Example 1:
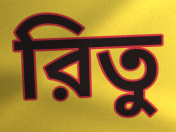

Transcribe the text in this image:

রিতু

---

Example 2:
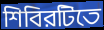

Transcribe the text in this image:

শিবিরটিতে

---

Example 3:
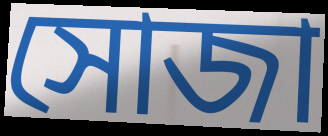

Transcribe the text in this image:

সোজা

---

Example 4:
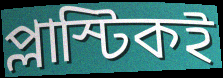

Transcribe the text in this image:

প্লাস্টিকই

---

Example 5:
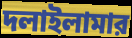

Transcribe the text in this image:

দলাইলামার